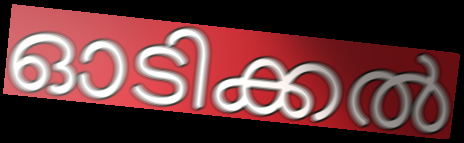
ഓടിക്കൽ